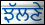
ਝੱਲਣੇ